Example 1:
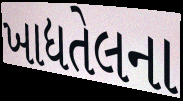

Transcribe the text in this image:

ખાદ્યતેલના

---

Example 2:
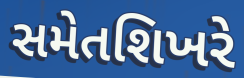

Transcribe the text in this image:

સમેતશિખરે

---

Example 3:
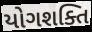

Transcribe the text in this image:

યોગશક્તિ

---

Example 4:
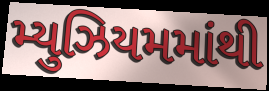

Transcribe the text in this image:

મ્યુઝિયમમાંથી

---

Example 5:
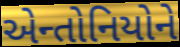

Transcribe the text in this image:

એન્તોનિયોને